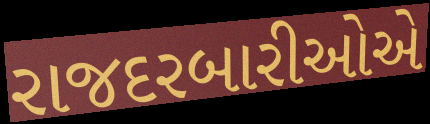
રાજદરબારીઓએ